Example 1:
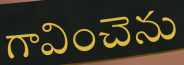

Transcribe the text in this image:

గావించెను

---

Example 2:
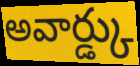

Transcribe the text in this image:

అవార్డ్కు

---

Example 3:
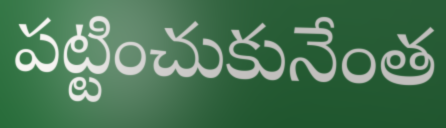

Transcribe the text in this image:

పట్టించుకునేంత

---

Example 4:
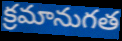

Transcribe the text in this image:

క్రమానుగత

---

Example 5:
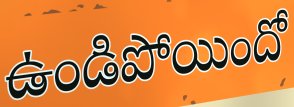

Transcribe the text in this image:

ఉండిపోయిందో